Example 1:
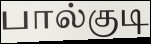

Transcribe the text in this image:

பால்குடி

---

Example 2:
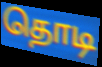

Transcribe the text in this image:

தொடி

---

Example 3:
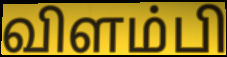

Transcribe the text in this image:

விளம்பி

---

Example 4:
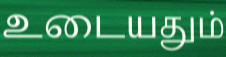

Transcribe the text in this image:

உடையதும்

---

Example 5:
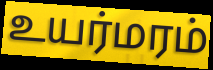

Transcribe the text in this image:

உயர்மரம்